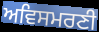
ਅਵਿਸਮਰਣੀ